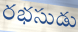
రభసుడు